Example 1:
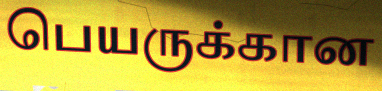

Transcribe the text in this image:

பெயருக்கான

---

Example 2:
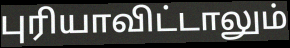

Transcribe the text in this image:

புரியாவிட்டாலும்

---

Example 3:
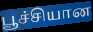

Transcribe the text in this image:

பூச்சியான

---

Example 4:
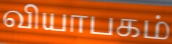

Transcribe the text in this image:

வியாபகம்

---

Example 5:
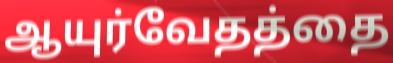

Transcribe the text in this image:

ஆயுர்வேதத்தை